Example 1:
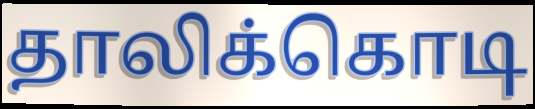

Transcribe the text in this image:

தாலிக்கொடி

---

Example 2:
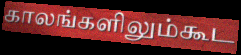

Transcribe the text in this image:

காலங்களிலும்கூட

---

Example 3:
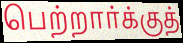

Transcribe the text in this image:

பெற்றார்க்குத்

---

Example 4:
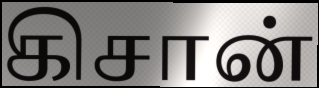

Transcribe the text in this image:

கிசான்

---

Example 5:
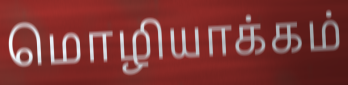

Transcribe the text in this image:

மொழியாக்கம்